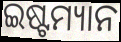
ଇଷ୍ଟମ୍ୟାନ